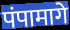
पंपामागे